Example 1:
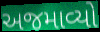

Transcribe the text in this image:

અજમાવ્યો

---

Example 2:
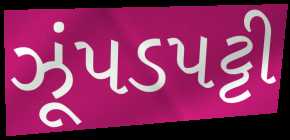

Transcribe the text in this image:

ઝૂંપડપટ્ટી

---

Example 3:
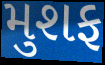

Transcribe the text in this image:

મુશફ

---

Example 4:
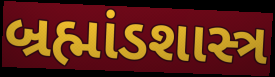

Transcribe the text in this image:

બ્રહ્માંડશાસ્ત્ર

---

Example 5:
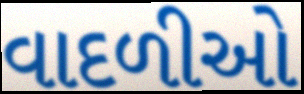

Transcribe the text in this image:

વાદળીઓ